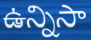
ఉన్నిసా